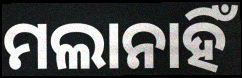
ମଲାନାହିଁ